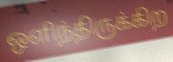
ஒளிந்திருக்கிற